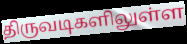
திருவடிகளிலுள்ள